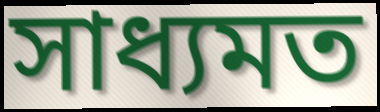
সাধ্যমত